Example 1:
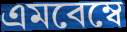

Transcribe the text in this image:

এমবেম্বে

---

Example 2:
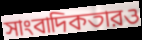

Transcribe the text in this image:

সাংবাদিকতারও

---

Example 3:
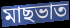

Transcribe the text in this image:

মাছভাত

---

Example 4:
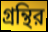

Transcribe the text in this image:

গ্রন্থির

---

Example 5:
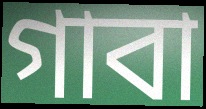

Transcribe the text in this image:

গাবা